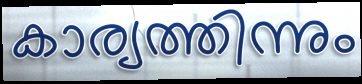
കാര്യത്തിന്നും